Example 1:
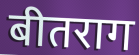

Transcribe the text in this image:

बीतराग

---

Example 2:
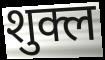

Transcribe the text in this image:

शुक्‍ल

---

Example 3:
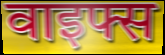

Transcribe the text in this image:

वाइफ्स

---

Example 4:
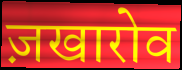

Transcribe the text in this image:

ज़खारोव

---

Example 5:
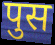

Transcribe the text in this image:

पुस